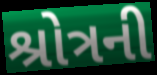
શ્રોત્રની